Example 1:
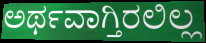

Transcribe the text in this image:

ಅರ್ಥವಾಗ್ತಿರಲಿಲ್ಲ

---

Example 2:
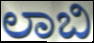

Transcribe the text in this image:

ಲಾಬಿ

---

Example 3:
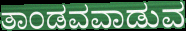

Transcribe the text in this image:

ತಾಂಡವವಾಡುವ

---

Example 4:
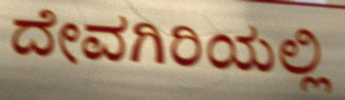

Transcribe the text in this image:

ದೇವಗಿರಿಯಲ್ಲಿ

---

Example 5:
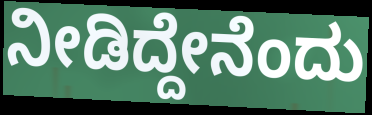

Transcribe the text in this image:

ನೀಡಿದ್ದೇನೆಂದು